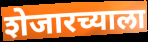
शेजारच्याला